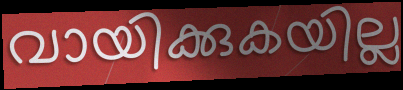
വായിക്കുകയില്ല